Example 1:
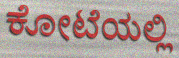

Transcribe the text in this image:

ಕೋಟೆಯಲ್ಲಿ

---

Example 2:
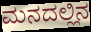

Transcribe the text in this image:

ಮನದಲ್ಲಿನ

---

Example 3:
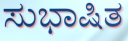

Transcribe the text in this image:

ಸುಭಾಷಿತ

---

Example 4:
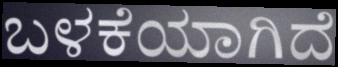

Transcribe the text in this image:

ಬಳಕೆಯಾಗಿದೆ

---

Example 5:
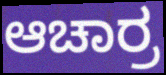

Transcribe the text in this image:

ಆಚಾರ್ರ